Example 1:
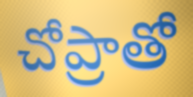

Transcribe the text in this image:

చోప్రాతో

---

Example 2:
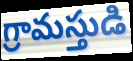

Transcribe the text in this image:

గ్రామస్తుడి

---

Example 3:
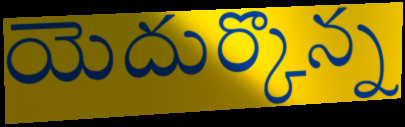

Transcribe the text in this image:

యెదుర్కొన్న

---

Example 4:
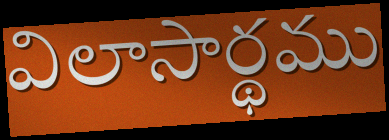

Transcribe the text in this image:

విలాసార్థము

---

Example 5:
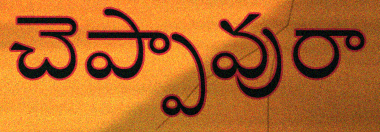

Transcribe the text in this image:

చెప్పావురా